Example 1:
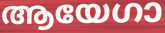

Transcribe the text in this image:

ആയേഗാ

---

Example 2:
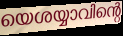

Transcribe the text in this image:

യെശയ്യാവിന്റെ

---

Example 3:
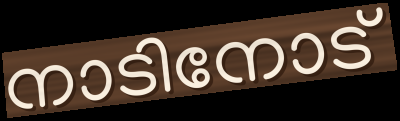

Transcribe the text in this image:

നാടിനോട്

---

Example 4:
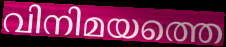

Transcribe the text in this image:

വിനിമയത്തെ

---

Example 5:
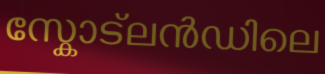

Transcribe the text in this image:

സ്കോട്ലൻഡിലെ